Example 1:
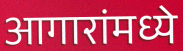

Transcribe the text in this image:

आगारांमध्ये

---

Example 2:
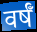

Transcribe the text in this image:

वर्षँ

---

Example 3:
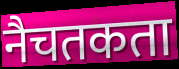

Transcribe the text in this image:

नैचतकता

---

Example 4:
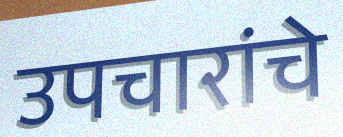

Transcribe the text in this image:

उपचारांचे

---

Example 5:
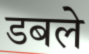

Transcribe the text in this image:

डबले